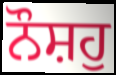
ਨੌਸ਼ਹੁ